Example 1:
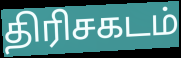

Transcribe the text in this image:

திரிசகடம்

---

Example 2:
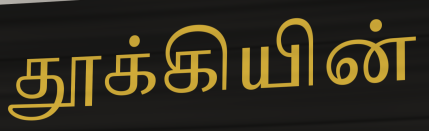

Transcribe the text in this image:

தூக்கியின்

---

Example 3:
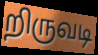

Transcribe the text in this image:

றிருவடி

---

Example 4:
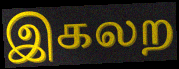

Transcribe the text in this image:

இகலற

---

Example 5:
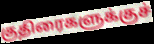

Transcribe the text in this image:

குதிரைகளுக்குச்